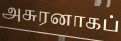
அசுரனாகப்